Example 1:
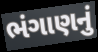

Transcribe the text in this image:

ભંગાણનું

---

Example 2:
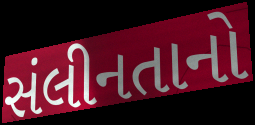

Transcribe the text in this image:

સંલીનતાનો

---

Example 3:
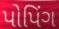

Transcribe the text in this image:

પોપિંગ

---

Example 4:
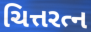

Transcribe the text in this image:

ચિત્તરત્ન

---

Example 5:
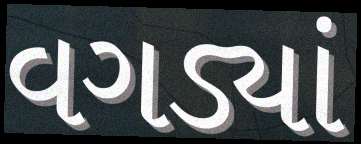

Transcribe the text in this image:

વગડ્યાં